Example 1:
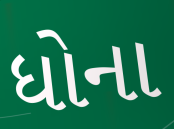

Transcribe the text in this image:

ધોના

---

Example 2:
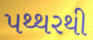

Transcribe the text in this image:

પથ્થરથી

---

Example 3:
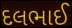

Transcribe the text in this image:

દલભાઈ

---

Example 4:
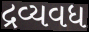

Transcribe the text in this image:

દ્રવ્યવધ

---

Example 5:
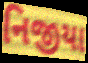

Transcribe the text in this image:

નિજીયા